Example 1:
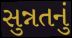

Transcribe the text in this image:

સુન્નતનું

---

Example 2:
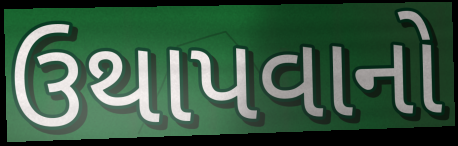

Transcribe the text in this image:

ઉથાપવાનો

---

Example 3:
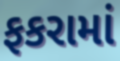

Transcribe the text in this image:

ફકરામાં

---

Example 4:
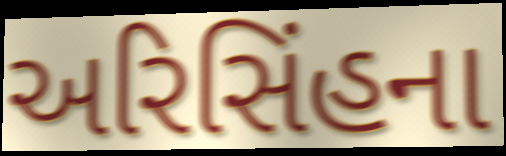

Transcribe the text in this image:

અરિસિંહના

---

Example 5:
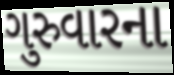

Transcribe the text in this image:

ગુરુવારના